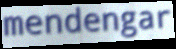
mendengar